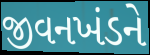
જીવનખંડને